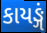
કાયઙ્ગં